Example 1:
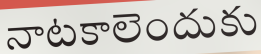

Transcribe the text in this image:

నాటకాలెందుకు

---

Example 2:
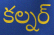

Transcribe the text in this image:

కల్నర్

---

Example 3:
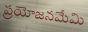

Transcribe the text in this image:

ప్రయోజనమేమి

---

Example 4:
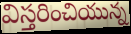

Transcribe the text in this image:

విస్తరించియున్న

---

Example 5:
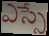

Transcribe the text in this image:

ఎస్సే